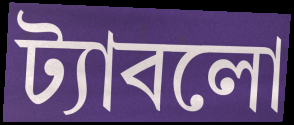
ট্যাবলো